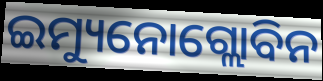
ଇମ୍ୟୁନୋଗ୍ଲୋବିନ